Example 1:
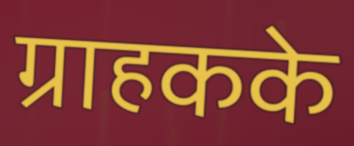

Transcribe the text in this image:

ग्राहकके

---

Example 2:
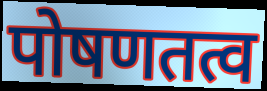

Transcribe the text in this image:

पोषणतत्व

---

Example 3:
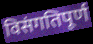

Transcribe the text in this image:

विसंगतिपूर्ण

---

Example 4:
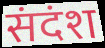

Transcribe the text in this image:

संदंश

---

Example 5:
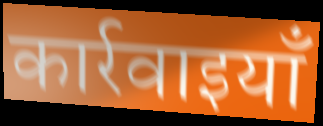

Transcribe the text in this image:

कार्रवाइयाँ